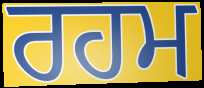
ਰਹਮ